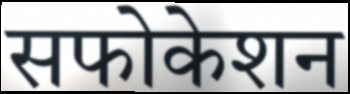
सफोकेशन